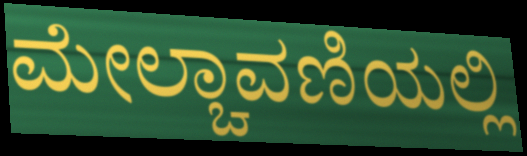
ಮೇಲ್ಚಾವಣಿಯಲ್ಲಿ